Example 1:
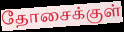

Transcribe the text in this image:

தோசைக்குள்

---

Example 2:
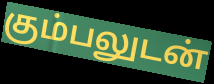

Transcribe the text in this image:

கும்பலுடன்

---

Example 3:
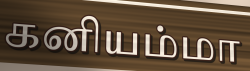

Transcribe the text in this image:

கனியம்மா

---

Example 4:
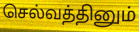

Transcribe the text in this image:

செல்வத்தினும்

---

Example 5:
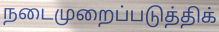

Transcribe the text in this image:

நடைமுறைப்படுத்திக்